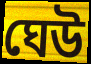
ঘেউ